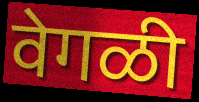
वेगळी